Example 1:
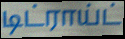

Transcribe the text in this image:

டிட்ராய்ட்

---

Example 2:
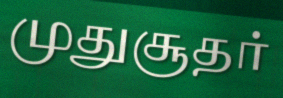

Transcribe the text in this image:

முதுசூதர்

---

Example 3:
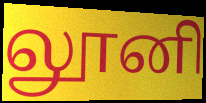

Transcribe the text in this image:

லூனி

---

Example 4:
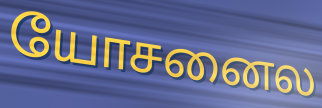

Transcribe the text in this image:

யோசனைல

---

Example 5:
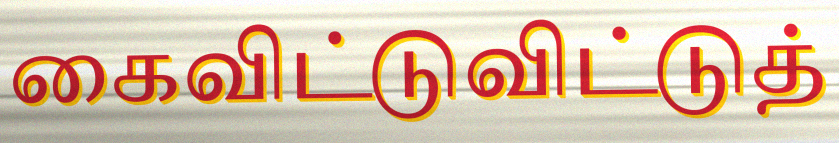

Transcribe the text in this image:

கைவிட்டுவிட்டுத்